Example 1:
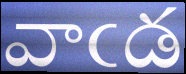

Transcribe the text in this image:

వాఁడ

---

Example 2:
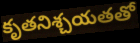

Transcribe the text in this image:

కృతనిశ్చయతతో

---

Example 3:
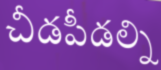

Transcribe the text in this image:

చీడపీడల్ని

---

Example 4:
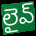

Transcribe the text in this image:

లైవ్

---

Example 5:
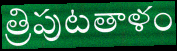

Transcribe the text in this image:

త్రిపుటతాళం